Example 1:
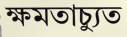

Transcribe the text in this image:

ক্ষমতাচ্যুত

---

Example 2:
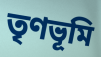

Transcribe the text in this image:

তৃণভূমি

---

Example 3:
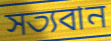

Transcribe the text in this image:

সত্যবান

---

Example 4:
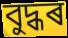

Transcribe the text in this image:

বুদ্ধৰ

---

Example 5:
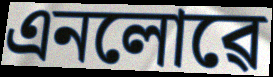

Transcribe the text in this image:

এনলোৱে